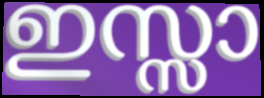
ഇസ്സാ